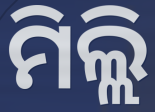
ମିଲ୍ଲି